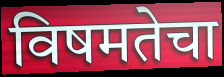
विषमतेचा